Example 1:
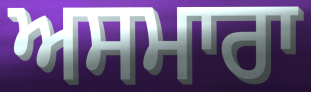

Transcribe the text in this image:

ਅਸਮਾਰਾ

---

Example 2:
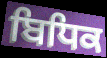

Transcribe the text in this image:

ਬਿਧਿਕ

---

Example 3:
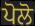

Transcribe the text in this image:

ਪੋਲੋ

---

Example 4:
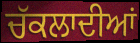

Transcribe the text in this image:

ਚੱਕਲਾਦੀਆਂ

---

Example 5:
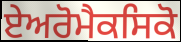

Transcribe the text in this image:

ਏਅਰੋਮੈਕਸਿਕੋ